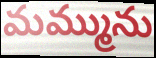
మమ్మును